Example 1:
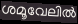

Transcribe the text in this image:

ശമൂവേലിൽ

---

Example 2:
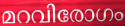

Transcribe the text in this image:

മറവിരോഗം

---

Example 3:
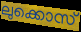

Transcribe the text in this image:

ലുക്കൊസ്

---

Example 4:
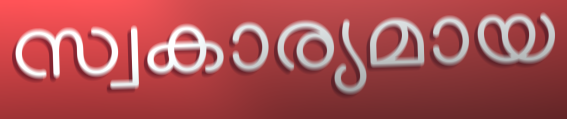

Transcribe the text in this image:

സ്വകാര്യമായ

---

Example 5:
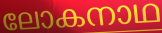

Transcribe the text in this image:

ലോകനാഥ